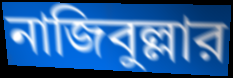
নাজিবুল্লার